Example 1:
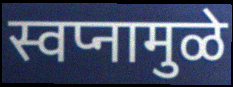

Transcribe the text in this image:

स्वप्नामुळे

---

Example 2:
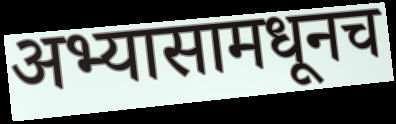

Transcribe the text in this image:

अभ्यासामधूनच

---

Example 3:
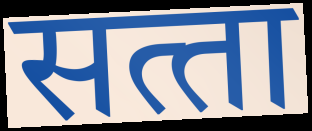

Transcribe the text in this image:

सत्‍ता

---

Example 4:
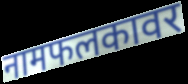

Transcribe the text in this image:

नामफलकावर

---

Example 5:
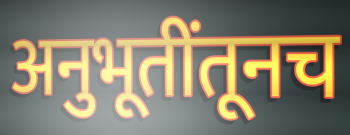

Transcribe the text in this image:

अनुभूतींतूनच